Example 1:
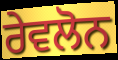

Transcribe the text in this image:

ਰੇਵਲੋਨ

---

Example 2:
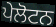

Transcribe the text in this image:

ਪੇਲੋਟਨ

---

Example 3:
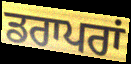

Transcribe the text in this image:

ਡਰਾਪਰਾਂ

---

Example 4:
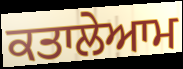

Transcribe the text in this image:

ਕਤਾਲੇਆਮ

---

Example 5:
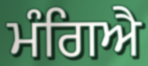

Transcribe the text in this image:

ਮੰਗਿਐ